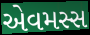
એવમસ્સ